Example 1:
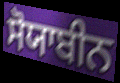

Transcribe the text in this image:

ਸੋਯਾਬੀਨ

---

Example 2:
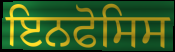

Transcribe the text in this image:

ਇਨਫੋਸਿਸ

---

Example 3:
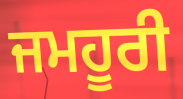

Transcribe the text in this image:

ਜਮਹੂਰੀ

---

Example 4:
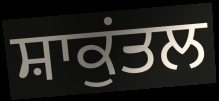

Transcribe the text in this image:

ਸ਼ਾਕੁਂਤਲ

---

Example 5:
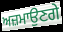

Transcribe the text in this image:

ਅਜ਼ਮਾਉਣਗੇ